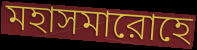
মহাসমারোহে